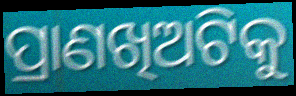
ପ୍ରାଣଖିଅଟିକୁ